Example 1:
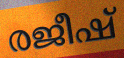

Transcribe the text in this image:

രജീഷ്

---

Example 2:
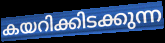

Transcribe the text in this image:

കയറിക്കിടക്കുന്ന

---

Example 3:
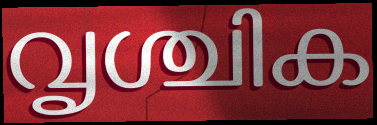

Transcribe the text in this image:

വൃശ്ചിക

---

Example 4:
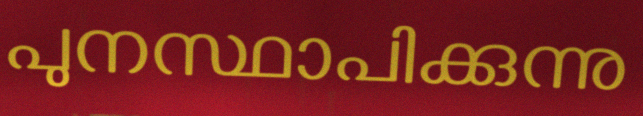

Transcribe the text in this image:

പുനസ്ഥാപിക്കുന്നു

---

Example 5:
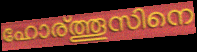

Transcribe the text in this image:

ഹോര്ത്തൂസിനെ